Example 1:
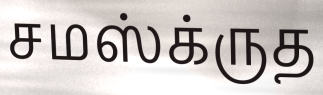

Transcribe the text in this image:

சமஸ்க்ருத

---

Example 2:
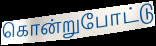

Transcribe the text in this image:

கொன்றுபோட்டு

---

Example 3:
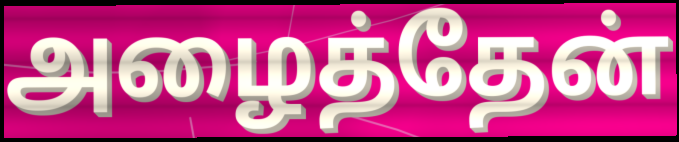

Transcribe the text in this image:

அழைத்தேன்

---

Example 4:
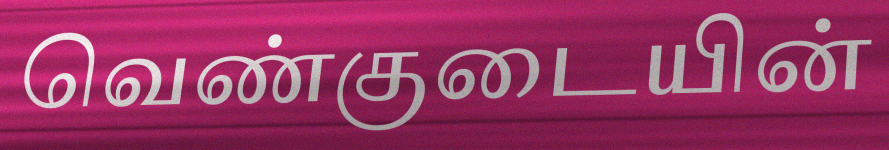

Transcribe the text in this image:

வெண்குடையின்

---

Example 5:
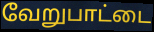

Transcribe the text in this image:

வேறுபாட்டை